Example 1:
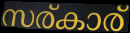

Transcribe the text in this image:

സര്കാര്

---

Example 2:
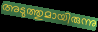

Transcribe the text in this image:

അടുത്തുമായിരുന്നു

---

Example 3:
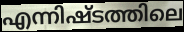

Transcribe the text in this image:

എന്നിഷ്ടത്തിലെ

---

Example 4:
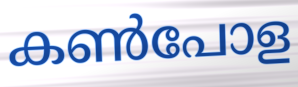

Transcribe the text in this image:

കൺപോള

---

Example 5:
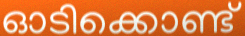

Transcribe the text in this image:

ഓടിക്കൊണ്ട്